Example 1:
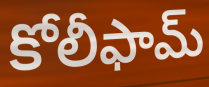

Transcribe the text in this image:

కోలీఫామ్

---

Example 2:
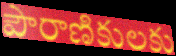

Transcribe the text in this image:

పౌరాణికులకు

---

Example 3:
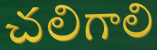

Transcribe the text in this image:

చలిగాలి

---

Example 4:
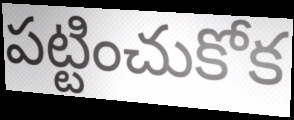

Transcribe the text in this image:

పట్టించుకోక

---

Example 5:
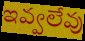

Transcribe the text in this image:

ఇవ్వలేవు